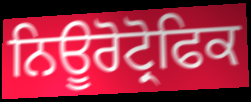
ਨਿਊਰੋਟ੍ਰੋਫਿਕ